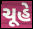
ચૂહે